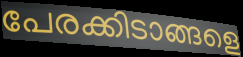
പേരക്കിടാങ്ങളെ